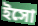
ইসো